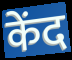
केंद